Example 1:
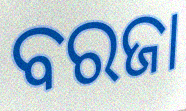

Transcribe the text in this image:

ବରଜା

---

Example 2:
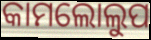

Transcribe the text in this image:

କାମଲୋଲୁପ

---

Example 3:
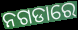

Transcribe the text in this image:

ନଗଡାରେ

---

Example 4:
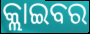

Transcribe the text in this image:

କ୍ଲାଇବର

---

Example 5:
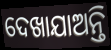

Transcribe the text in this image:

ଦେଖାଯାଅନ୍ତି